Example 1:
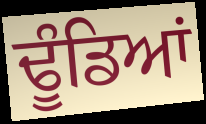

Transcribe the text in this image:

ਢੂੰਡਿਆਂ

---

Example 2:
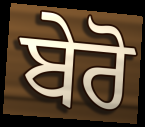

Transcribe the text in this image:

ਬੇਰੋ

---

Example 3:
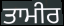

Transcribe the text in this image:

ਤਾਮੀਰ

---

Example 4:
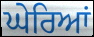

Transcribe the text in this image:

ਘੇਰਿਆਂ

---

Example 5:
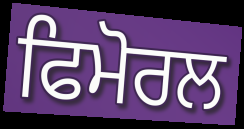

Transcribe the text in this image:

ਫਿਮੋਰਲ